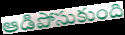
ఆడిపోసుకుంది